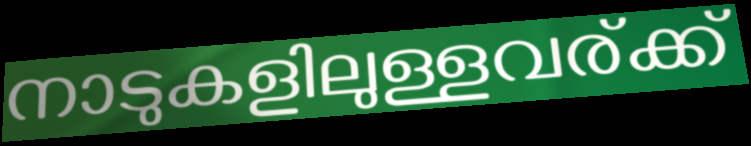
നാടുകളിലുള്ളവര്ക്ക്